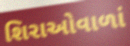
શિરાઓવાળાં